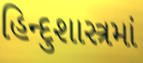
હિન્દુશાસ્ત્રમાં